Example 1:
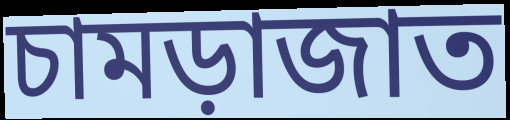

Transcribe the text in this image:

চামড়াজাত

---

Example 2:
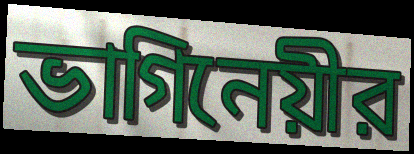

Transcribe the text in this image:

ভাগিনেয়ীর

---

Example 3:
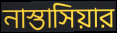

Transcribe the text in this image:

নাস্তাসিয়ার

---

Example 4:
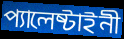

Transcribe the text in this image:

প্যালেষ্টাইনী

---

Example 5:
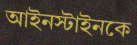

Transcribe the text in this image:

আইনস্টাইনকে